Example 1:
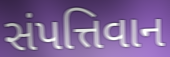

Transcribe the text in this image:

સંપત્તિવાન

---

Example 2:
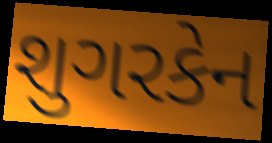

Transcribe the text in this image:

શુગરકેન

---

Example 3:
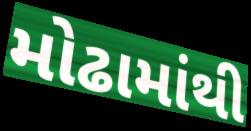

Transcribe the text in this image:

મોઢામાંથી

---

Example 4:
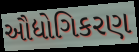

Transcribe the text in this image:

ઔદ્યોગિકરણ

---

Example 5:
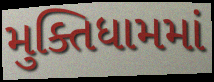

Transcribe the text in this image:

મુક્તિધામમાં